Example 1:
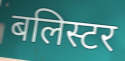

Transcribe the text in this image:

बलिस्टर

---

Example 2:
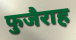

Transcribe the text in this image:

फुजैराह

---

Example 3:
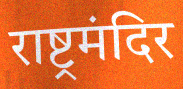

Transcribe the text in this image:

राष्ट्रमंदिर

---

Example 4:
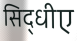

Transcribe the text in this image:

सिद्धीए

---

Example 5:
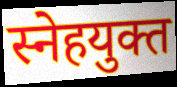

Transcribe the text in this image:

स्नेहयुक्त